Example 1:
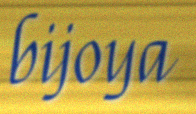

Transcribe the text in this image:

bijoya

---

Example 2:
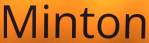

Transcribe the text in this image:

Minton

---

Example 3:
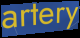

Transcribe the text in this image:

artery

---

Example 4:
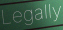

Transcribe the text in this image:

Legally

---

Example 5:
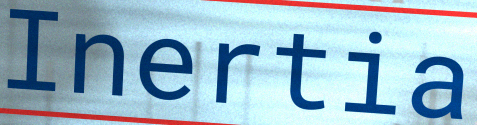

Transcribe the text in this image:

Inertia